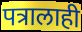
पत्रालाही